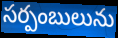
సర్పంబులును